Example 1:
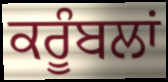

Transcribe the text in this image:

ਕਰੂੰਬਲਾਂ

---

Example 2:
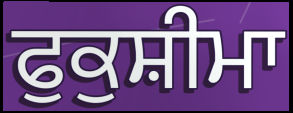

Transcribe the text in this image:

ਫੁਕੁਸ਼ੀਮਾ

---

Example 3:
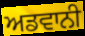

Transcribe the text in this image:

ਅਡਵਾਨੀ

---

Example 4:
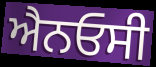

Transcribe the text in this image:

ਐਨਓਸੀ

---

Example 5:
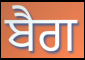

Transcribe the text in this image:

ਬੈਗ